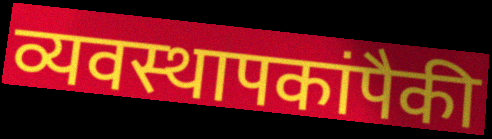
व्यवस्थापकांपैकी